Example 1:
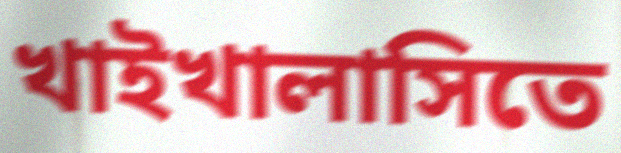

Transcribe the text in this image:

খাইখালাসিতে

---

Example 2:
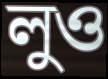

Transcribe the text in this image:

লুও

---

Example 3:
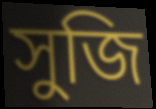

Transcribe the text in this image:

সুজি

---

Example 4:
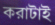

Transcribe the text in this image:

করাটাই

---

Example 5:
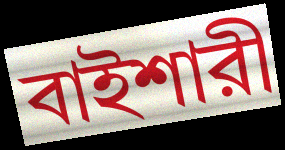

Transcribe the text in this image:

বাইশারী